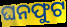
ଘନଫୁଟ